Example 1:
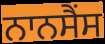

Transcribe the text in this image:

ਨਾਨਸੈਂਸ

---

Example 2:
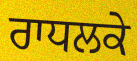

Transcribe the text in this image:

ਰਾਧਲਕੇ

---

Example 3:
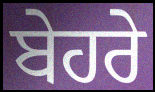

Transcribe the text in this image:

ਬੇਹਰੇ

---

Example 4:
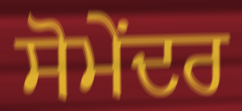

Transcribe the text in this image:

ਸੋਮੇਂਦਰ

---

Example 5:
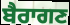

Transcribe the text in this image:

ਬੈਰਾਗਣ